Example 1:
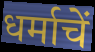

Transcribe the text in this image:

धर्माचें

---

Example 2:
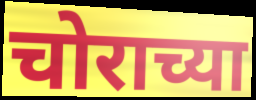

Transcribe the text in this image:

चोराच्या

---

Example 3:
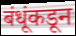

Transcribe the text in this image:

बंधूंकडून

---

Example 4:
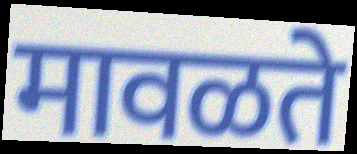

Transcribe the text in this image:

मावळते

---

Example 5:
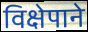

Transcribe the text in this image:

विक्षेपाने